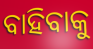
ବାହିବାକୁ